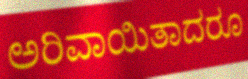
ಅರಿವಾಯಿತಾದರೂ